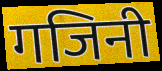
गजिनी